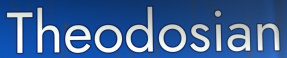
Theodosian